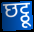
छट्ठू